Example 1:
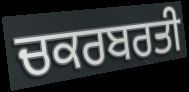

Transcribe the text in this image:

ਚਕਰਬਰਤੀ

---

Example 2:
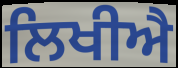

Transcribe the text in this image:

ਲਿਖੀਐ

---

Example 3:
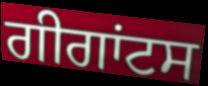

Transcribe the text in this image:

ਗੀਗਾਂਟਸ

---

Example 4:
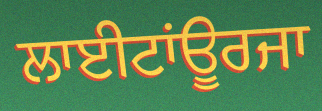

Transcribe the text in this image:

ਲਾਈਟਾਂਊਰਜਾ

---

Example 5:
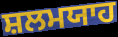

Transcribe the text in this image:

ਸ਼ਲਮਯਾਹ